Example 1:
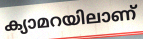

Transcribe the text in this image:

ക്യാമറയിലാണ്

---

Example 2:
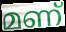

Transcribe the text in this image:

മണ്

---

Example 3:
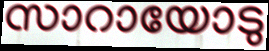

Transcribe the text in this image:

സാറായോടു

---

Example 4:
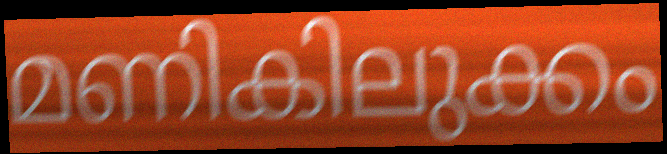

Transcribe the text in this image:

മണികിലുക്കം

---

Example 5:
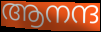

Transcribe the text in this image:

ആനന്ദ